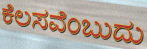
ಕೆಲಸವೆಂಬುದು